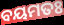
ବୟମତଃ